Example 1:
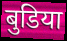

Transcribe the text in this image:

बुडिया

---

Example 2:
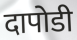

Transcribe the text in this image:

दापोडी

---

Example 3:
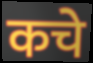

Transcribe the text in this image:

कचे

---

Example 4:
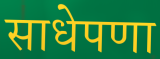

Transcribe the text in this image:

साधेपणा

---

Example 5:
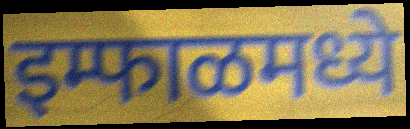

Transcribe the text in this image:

इम्फाळमध्ये